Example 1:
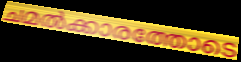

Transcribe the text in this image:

ചമൽക്കാരത്തോടെ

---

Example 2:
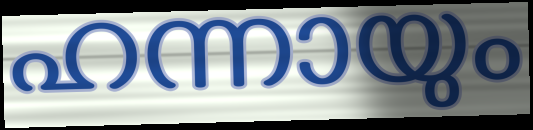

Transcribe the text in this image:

ഹന്നായും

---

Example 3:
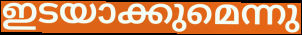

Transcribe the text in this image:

ഇടയാക്കുമെന്നു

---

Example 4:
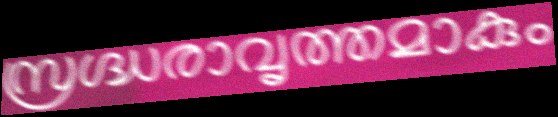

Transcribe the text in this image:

സ്രഗ്ദ്ധരാവൃത്തമാകും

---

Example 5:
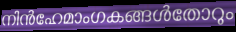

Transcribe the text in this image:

നിൻഹേമാംഗകങ്ങൾതോറും